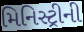
મિનિસ્ટ્રીની